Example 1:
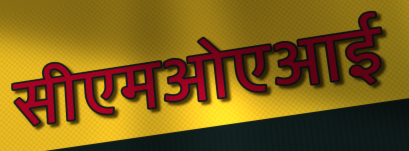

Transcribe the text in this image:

सीएमओएआई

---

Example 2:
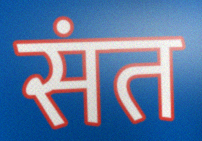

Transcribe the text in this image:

संत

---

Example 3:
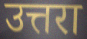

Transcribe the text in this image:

उत्तरा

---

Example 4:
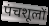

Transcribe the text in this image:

पंचशूलों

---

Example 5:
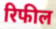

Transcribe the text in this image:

रिफील